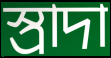
স্ত্রাদা